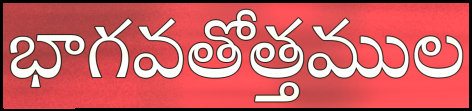
భాగవతోత్తముల